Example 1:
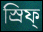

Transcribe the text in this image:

স্রিফ্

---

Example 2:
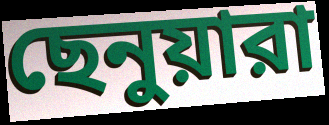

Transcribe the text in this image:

ছেনুয়ারা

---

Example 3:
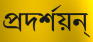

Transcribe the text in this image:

প্রদর্শয়ন্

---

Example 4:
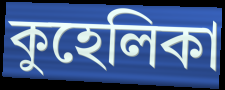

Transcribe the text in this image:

কুহেলিকা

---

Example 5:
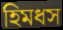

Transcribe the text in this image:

হিমধস